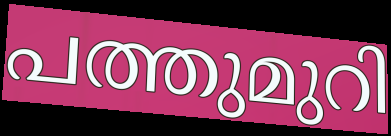
പത്തുമുറി